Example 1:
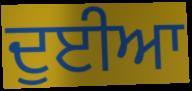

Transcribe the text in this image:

ਦੁਈਆ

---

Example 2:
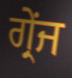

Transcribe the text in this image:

ਗ੍ਰੇਂਜ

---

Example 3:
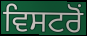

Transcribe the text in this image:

ਵਿਸਟਰੋਂ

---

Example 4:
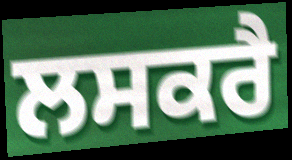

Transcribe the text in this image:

ਲਸਕਰੈ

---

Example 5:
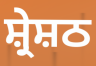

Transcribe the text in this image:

ਸ਼੍ਰੇਸ਼ਠ